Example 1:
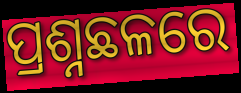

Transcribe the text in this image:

ପ୍ରଶ୍ନଛଳରେ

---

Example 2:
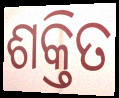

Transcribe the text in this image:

ଶକ୍ତିତ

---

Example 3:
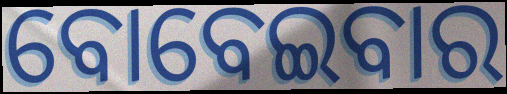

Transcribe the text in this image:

ବୋବେଇବାର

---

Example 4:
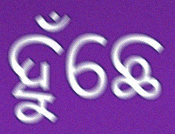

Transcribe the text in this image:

ହୁଁଛେ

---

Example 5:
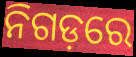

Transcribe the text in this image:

ନିଗଡ଼ରେ